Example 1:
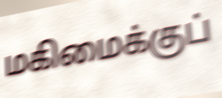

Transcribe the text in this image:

மகிமைக்குப்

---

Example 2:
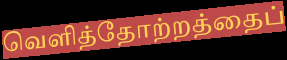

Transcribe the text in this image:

வெளித்தோற்றத்தைப்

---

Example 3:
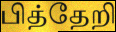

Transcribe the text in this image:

பித்தேறி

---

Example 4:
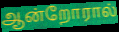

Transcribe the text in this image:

ஆன்றோரால்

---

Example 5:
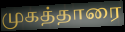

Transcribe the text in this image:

முகத்தாரை